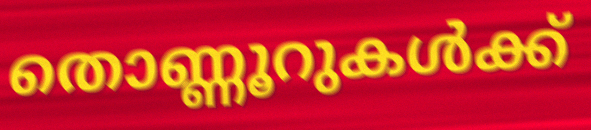
തൊണ്ണൂറുകൾക്ക്